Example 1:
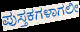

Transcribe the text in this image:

ಪುಸ್ತಕಗಳಾಗಲೀ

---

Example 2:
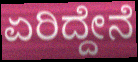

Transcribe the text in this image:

ಏರಿದ್ದೇನೆ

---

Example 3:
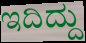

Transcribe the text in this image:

ಇದಿದ್ದು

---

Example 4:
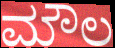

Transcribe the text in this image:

ಮೌಲ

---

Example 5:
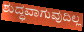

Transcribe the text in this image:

ಶುದ್ಧವಾಗುವುದಿಲ್ಲ